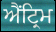
ਐਂਟ੍ਰਿਮ